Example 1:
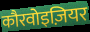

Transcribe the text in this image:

कौरवोइज़ियर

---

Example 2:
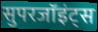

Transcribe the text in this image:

सुपरजॉइंट्स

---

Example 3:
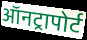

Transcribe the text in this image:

ऑनट्रापोर्ट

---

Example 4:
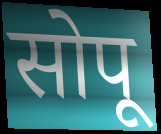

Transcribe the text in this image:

सोपू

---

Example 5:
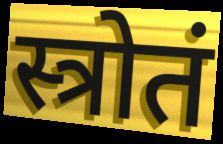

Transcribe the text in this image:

स्त्रोतं